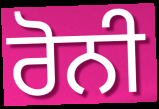
ਰੋਨੀ